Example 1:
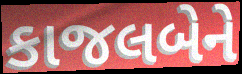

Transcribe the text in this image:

કાજલબેને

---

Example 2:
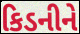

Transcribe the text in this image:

કિડનીને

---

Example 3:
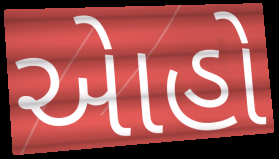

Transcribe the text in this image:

એાહો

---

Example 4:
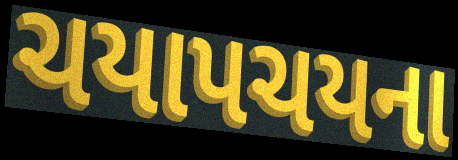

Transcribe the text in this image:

ચયાપચયના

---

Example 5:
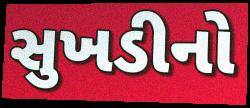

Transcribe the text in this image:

સુખડીનો